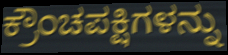
ಕ್ರೌಂಚಪಕ್ಷಿಗಳನ್ನು